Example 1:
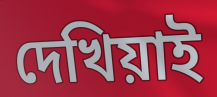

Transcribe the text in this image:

দেখিয়াই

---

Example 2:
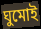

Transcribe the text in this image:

ঘুমোই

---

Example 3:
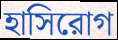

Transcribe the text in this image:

হাসিরোগ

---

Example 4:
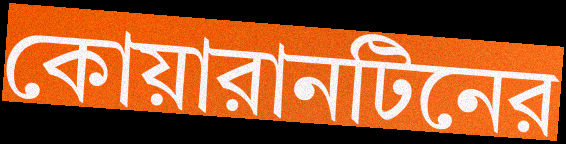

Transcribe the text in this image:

কোয়ারানটিনের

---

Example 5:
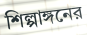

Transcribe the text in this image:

শিল্পাঙ্গনের